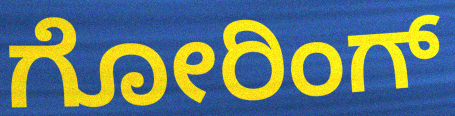
ಗೋರಿಂಗ್